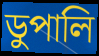
ডুপালি